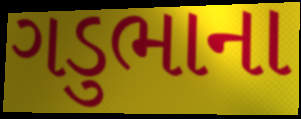
ગડુભાના